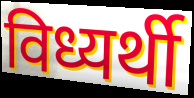
विध्यर्थी